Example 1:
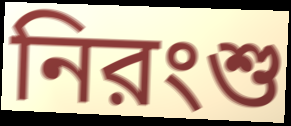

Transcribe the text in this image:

নিরংশু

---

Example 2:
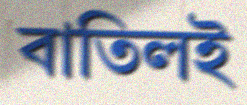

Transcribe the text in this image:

বাতিলই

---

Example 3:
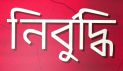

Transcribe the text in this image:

নির্বুদ্ধি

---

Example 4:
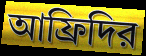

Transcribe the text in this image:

আফ্রিদির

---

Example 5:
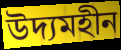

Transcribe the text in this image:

উদ্যমহীন